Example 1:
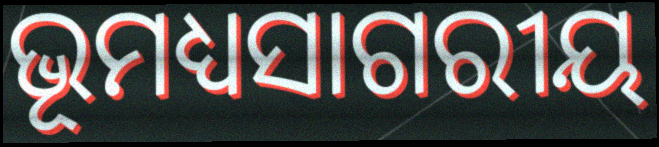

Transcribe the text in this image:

ଭୂମଧ୍ୟସାଗରୀୟ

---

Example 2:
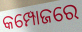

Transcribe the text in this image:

କମ୍ପୋଜରେ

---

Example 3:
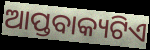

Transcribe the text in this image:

ଆପ୍ତବାକ୍ୟଟିଏ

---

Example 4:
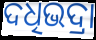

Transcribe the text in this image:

ଦଧିଭଦ୍ରା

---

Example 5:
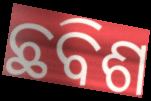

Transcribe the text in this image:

ଛବିଶ